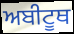
ਅਬੀਟੂਥ